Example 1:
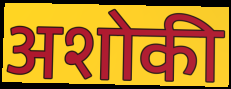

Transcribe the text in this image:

अशोकी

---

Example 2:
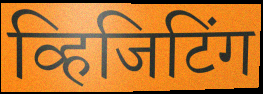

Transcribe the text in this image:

व्हिजिटिंग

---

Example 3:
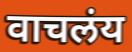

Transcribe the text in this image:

वाचलंय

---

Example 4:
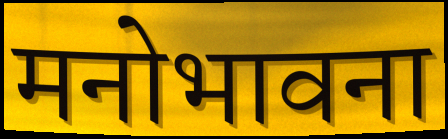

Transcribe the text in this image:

मनोभावना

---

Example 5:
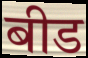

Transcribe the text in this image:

बीड